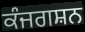
ਕੰਜਗਸ਼ਨ